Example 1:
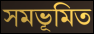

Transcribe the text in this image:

সমভূমিত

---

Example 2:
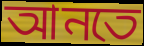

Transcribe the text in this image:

আনতে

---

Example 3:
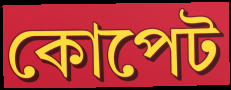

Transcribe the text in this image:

কোপেট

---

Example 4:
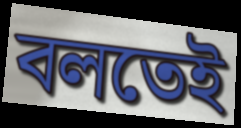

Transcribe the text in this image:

বলতেই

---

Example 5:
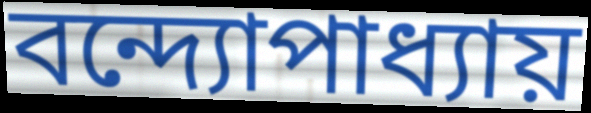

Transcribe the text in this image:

বন্দ্যোপাধ্যায়